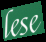
lese